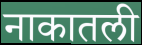
नाकातली